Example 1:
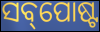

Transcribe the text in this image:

ସବ୍‌ପୋଷ୍ଟ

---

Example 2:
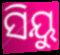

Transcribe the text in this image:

ସିୟୁ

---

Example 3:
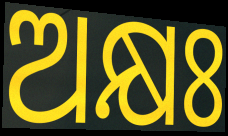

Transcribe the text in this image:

ଅକ୍ଷଃ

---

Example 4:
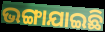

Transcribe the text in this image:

ଭଙ୍ଗାଯାଇଛି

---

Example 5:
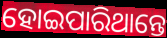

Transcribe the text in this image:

ହୋଇପାରିଥାନ୍ତେ